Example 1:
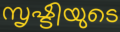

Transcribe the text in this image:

സൃഷ്ടിയുടെ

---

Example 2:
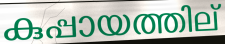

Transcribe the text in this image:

കുപ്പായത്തില്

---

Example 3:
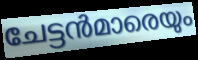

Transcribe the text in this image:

ചേട്ടൻമാരെയും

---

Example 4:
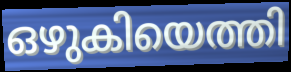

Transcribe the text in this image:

ഒഴുകിയെത്തി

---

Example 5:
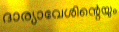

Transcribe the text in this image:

ദാര്യാവേശിന്റെയും